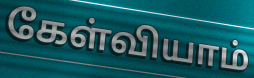
கேள்வியாம்